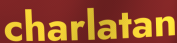
charlatan